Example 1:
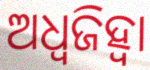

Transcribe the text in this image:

ଅଧ୍ୱଜିହ୍ବା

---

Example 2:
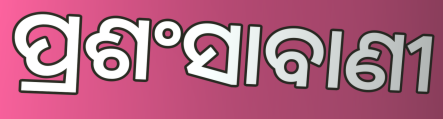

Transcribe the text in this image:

ପ୍ରଶଂସାବାଣୀ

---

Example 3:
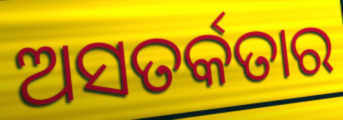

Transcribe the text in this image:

ଅସତର୍କତାର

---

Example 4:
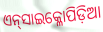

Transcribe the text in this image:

ଏନ୍‌ସାଇକ୍ଳୋପିଡ଼ିଆ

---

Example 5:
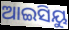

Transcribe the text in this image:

ଆଇସିୟୁ